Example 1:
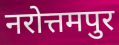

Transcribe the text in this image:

नरोत्तमपुर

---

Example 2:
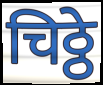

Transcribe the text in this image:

चिठ्ठे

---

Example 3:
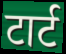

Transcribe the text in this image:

टार्ट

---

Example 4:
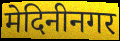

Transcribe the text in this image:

मेदिनीनगर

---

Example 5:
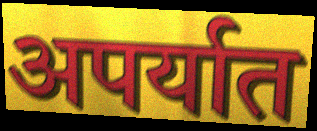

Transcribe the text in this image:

अपर्यात